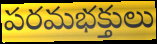
పరమభక్తులు